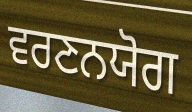
ਵਰਣਨਯੋਗ